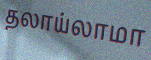
தலாய்லாமா